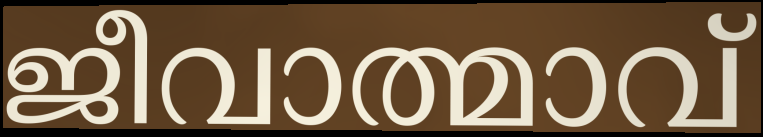
ജീവാത്മാവ്